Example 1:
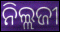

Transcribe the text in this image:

ନିଲ୍ଲଜୀ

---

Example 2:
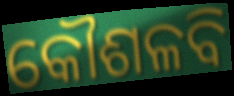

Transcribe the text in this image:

କୌଶଳବି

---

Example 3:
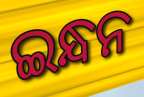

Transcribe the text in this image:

ଇନ୍ଧନ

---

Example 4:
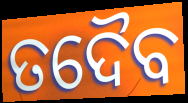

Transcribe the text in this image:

ତଦୈବ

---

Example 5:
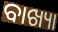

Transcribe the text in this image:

ବାଖ୍ୟା